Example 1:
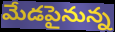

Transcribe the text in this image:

మేడపైనున్న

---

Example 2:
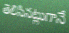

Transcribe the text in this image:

తెలిసినట్లుగానే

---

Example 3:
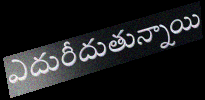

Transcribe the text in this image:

ఎదురీదుతున్నాయి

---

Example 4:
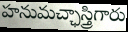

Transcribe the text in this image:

హనుమచ్ఛాస్త్రిగారు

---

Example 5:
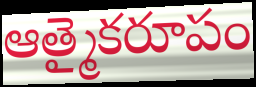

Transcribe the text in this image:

ఆత్మైకరూపం